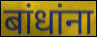
बांधांना